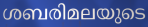
ശബരിമലയുടെ